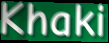
Khaki